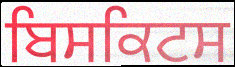
ਬਿਸਕਿਟਸ